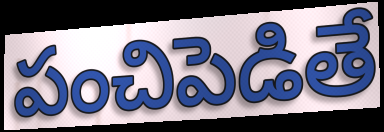
పంచిపెడితే